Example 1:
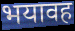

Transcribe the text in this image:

भयावह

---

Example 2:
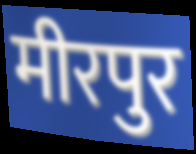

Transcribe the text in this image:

मीरपुर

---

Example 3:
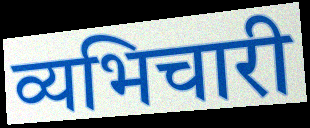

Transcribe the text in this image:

व्यभिचारी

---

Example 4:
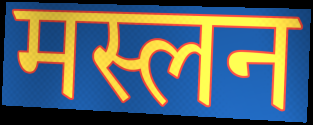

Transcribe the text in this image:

मस्लन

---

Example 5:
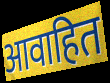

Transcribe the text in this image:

आवाहित